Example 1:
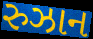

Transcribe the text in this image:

રુઝાન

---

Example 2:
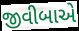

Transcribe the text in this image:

જીવીબાએ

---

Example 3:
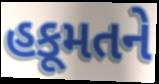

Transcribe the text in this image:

હકૂમતને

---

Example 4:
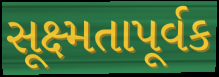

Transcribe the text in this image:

સૂક્ષ્મતાપૂર્વક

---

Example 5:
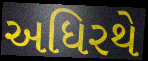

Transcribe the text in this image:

અધિરથે